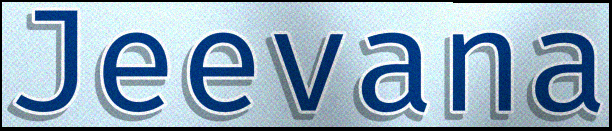
Jeevana